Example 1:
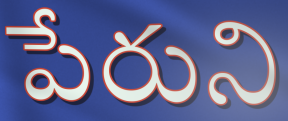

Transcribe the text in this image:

పేరుని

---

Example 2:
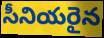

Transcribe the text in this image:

సీనియరైన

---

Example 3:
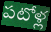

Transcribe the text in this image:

పటోళ్ల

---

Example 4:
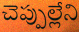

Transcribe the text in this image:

చెప్పుల్లేని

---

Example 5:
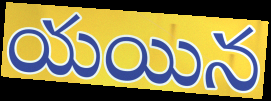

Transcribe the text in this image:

యయిన